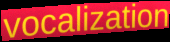
vocalization